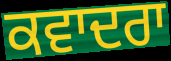
ਕਵਾਦਰਾ